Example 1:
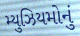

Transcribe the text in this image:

મ્યુઝિયમોનું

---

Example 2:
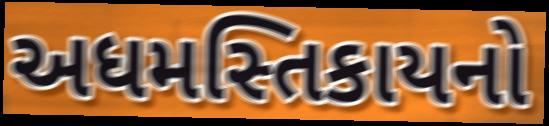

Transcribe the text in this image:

અધમસ્તિકાયનો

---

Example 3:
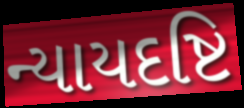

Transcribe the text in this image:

ન્યાયદષ્ટિ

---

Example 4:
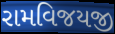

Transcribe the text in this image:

રામવિજયજી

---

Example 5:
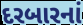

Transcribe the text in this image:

દરબારનાં